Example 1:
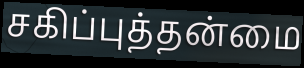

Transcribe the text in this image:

சகிப்புத்தன்மை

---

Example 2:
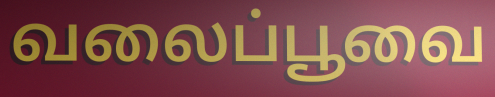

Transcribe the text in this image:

வலைப்பூவை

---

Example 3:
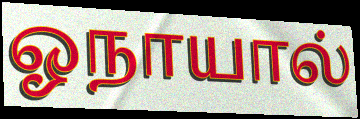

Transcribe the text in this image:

ஓநாயால்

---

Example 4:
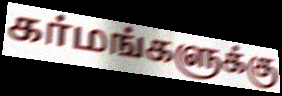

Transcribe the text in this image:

கர்மங்களுக்கு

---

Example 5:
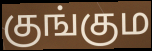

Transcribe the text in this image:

குங்கும